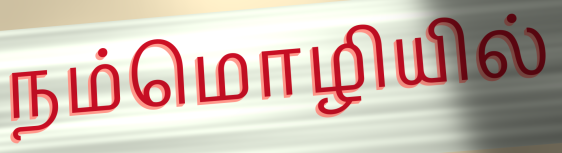
நம்மொழியில்